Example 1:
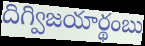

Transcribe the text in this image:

దిగ్విజయార్థంబు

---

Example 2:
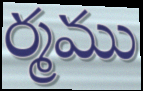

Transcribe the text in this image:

ర్మము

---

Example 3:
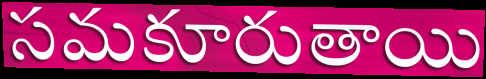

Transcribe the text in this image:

సమకూరుతాయి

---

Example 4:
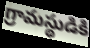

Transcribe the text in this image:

గ్రామస్థుడికి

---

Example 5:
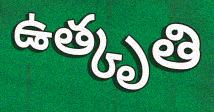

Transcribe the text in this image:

ఉత్కృతి